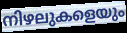
നിഴലുകളെയും